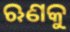
ଋଣକୁ